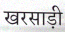
खरसाड़ी